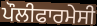
ਪੌਲੀਫਾਰਮੇਸੀ